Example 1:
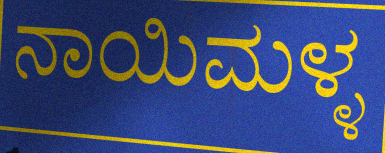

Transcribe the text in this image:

ನಾಯಿಮಳ್ಳ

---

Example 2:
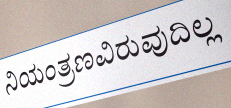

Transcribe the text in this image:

ನಿಯಂತ್ರಣವಿರುವುದಿಲ್ಲ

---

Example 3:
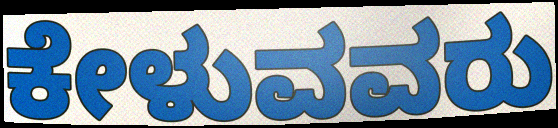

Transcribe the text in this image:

ಕೇಳುವವರು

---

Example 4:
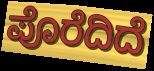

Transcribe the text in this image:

ಪೊರೆದಿದೆ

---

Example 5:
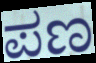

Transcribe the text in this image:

ಪಣ